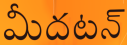
మీదటన్